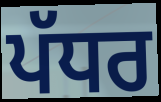
ਪੱਧਰ